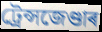
ট্ৰেন্সজেণ্ডাৰ